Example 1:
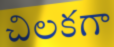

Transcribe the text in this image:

చిలకగా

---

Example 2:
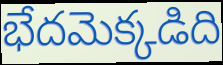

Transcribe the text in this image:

భేదమెక్కడిది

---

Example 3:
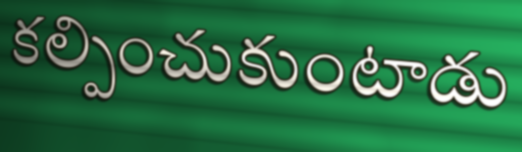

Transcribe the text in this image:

కల్పించుకుంటాడు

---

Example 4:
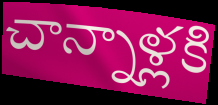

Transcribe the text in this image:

చాన్నాళ్లకి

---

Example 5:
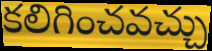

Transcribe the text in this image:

కలిగించవచ్చు